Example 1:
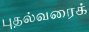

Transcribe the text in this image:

புதல்வரைக்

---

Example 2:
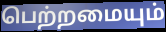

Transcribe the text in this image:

பெற்றமையும்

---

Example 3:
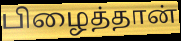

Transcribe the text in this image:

பிழைத்தான்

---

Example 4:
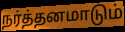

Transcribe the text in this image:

நர்த்தனமாடும்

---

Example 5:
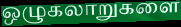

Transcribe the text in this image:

ஒழுகலாறுகளை